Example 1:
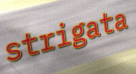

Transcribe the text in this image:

strigata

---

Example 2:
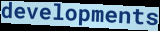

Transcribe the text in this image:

developments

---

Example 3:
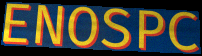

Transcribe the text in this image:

ENOSPC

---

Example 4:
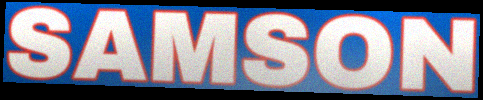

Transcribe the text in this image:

SAMSON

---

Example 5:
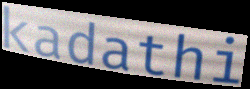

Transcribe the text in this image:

kadathi